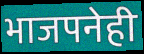
भाजपनेही